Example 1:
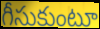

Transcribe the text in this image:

గీసుకుంటూ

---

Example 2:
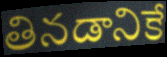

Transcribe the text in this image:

తినడానికే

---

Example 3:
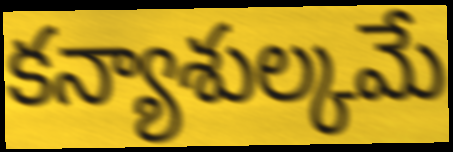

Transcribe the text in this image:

కన్యాశుల్కమే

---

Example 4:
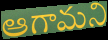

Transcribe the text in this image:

ఆగామని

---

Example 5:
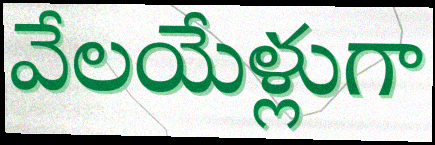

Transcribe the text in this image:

వేలయేళ్లుగా